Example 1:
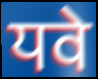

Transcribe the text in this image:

यवे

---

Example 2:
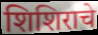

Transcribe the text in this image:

शिशिराचे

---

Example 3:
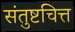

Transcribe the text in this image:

संतुष्टचित्त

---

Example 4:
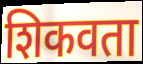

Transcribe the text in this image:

शिकवता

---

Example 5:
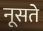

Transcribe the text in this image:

नूसते